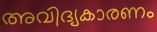
അവിദ്യകാരണം